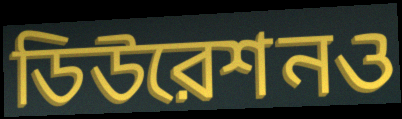
ডিউরেশনও